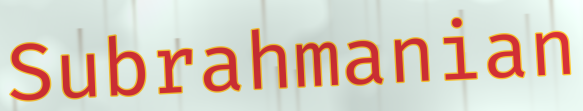
Subrahmanian